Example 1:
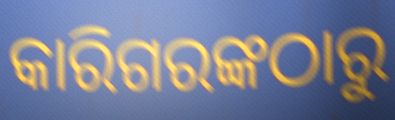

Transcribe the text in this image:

କାରିଗରଙ୍କଠାରୁ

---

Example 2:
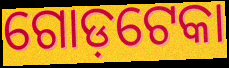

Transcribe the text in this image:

ଗୋଡ଼ଟେକା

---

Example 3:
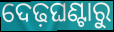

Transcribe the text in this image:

ଦେଢ଼ଘଣ୍ଟାରୁ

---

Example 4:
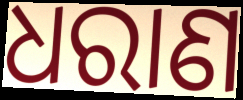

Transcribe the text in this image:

ଧରାଣ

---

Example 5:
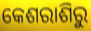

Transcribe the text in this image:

କେଶରାଶିରୁ